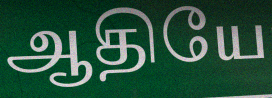
ஆதியே